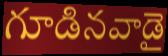
గూడినవాడై